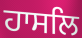
ਹਾਸਲਿ